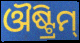
ଔଷ୍ଟ୍ରିମ୍